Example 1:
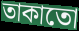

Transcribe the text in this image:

তাকাতো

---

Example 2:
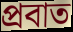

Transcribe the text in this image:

প্রবাত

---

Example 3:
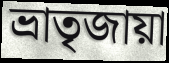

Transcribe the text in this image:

ভ্রাতৃজায়া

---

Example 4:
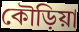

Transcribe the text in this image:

কৌড়িয়া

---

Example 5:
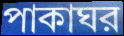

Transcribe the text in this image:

পাকাঘর